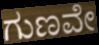
ಗುಣವೇ